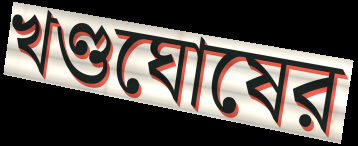
খণ্ডঘোষের